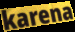
karena